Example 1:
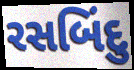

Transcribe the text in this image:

રસબિંદુ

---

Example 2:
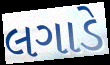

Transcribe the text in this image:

લગાડે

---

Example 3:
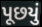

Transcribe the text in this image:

પૂછયું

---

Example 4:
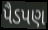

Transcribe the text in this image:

પૈડપણ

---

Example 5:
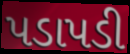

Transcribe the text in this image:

પડાપડી